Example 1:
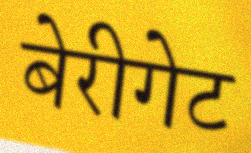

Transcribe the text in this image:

बेरीगेट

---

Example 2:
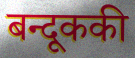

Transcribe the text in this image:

बन्दूककी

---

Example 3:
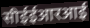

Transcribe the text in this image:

सीईईआरआई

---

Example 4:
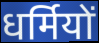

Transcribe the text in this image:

धर्मियों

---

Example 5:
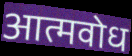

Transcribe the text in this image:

आत्मवोध